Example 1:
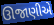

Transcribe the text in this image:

ઊજાણીએ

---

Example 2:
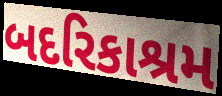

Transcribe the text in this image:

બદરિકાશ્રમ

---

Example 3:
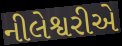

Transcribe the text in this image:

નીલેશ્વરીએ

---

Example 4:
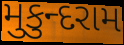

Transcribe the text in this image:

મુકુન્દરામ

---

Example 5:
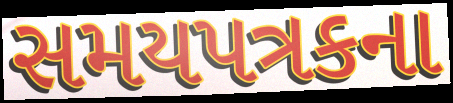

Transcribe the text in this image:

સમયપત્રકના